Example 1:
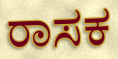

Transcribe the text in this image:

ರಾಸಕ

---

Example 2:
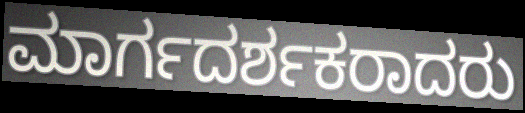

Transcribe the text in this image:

ಮಾರ್ಗದರ್ಶಕರಾದರು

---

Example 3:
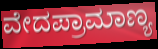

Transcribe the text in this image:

ವೇದಪ್ರಾಮಾಣ್ಯ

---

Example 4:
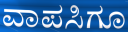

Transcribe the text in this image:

ವಾಪಸಿಗೂ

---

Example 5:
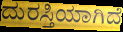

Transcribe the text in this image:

ದುರಸ್ತಿಯಾಗಿದೆ